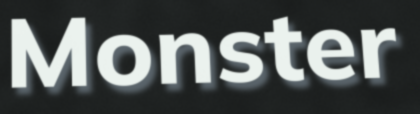
Monster